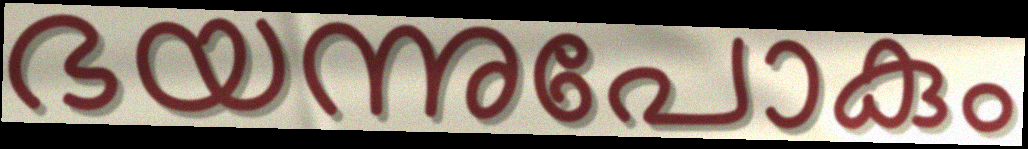
ഭയന്നുപോകും